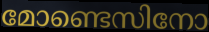
മോണ്ടെസിനോ